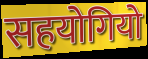
सहयोगियो